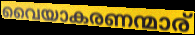
വൈയാകരണന്മാര്